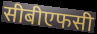
सीबीएफसी